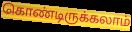
கொண்டிருக்கலாம்